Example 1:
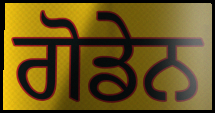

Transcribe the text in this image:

ਗੋਡੇਨ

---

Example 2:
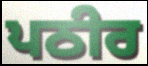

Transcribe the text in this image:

ਪਠੀਰ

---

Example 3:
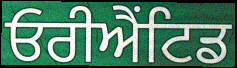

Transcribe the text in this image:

ਓਰੀਐਂਟਿਡ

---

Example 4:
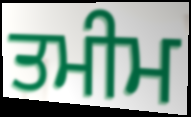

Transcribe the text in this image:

ਤਮੀਮ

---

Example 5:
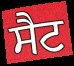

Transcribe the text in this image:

ਸੈਟ